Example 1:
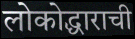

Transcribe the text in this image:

लोकोद्धाराची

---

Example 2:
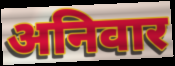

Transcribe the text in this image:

अनिवार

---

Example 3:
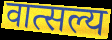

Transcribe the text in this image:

वात्सल्य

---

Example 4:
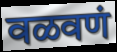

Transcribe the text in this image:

वळवणं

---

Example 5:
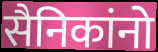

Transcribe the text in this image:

सैनिकांनो